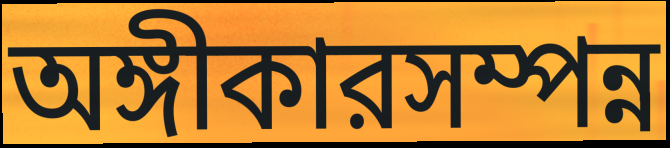
অঙ্গীকারসম্পন্ন